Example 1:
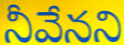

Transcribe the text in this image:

నీవేనని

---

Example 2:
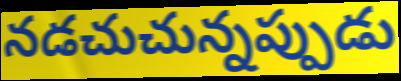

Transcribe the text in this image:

నడచుచున్నప్పుడు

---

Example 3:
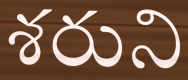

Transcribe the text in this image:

శరుని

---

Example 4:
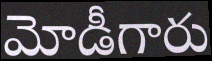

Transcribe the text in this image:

మోడీగారు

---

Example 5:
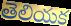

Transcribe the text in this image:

తెలియక